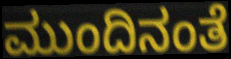
ಮುಂದಿನಂತೆ